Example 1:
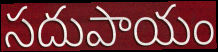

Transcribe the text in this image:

సదుపాయం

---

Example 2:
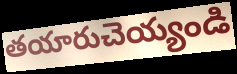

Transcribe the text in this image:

తయారుచెయ్యండి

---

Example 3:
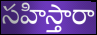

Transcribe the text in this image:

సహిస్తారా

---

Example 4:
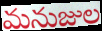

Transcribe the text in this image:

మనుజుల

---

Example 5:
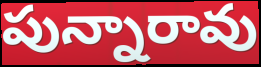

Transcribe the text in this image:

పున్నారావు